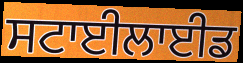
ਸਟਾਈਲਾਈਡ